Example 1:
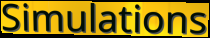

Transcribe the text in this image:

Simulations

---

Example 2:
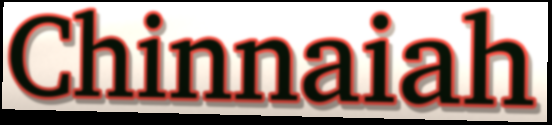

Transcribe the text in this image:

Chinnaiah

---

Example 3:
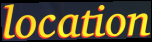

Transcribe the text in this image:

location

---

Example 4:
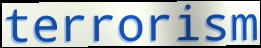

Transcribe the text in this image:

terrorism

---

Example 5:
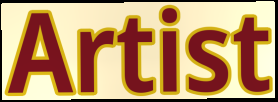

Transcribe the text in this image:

Artist